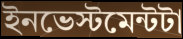
ইনভেস্টমেন্টটা